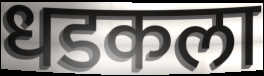
धडकला